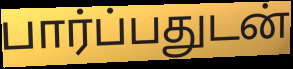
பார்ப்பதுடன்